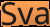
Sva